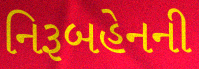
નિરૂબહેનની